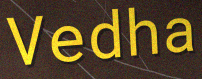
Vedha